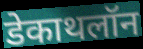
डेकाथलॉन